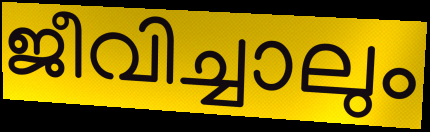
ജീവിച്ചാലും